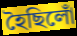
হৈছিলোঁ